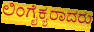
ಲಿಂಗೈಕ್ಯರಾದರು